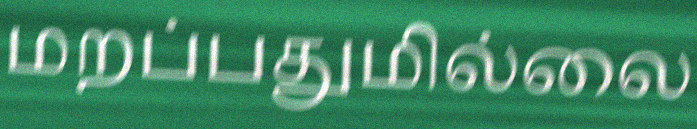
மறப்பதுமில்லை